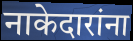
नाकेदारांना